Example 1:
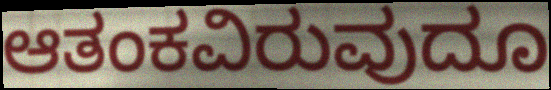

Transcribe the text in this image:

ಆತಂಕವಿರುವುದೂ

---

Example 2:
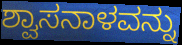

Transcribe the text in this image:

ಶ್ವಾಸನಾಳವನ್ನು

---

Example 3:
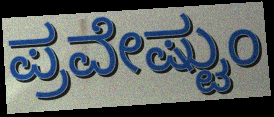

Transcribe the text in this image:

ಪ್ರವೇಷ್ಟುಂ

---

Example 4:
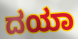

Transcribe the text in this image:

ದಯಾ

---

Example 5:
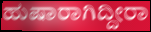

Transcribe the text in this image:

ಹುಷಾರಾಗಿದ್ದೀರಾ